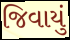
જિવાયું